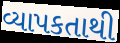
વ્યાપકતાથી